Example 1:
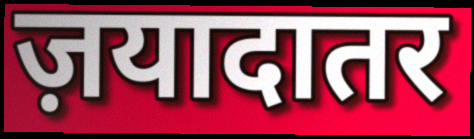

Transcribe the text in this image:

ज़यादातर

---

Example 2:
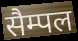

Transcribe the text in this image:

सैम्पल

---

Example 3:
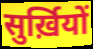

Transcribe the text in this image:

सुर्ख़ियों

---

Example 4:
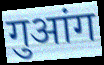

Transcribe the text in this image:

गुआंग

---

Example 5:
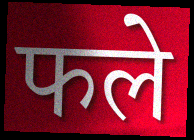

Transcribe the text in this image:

फले